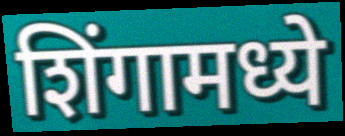
शिंगामध्ये